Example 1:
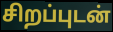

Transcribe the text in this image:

சிறப்புடன்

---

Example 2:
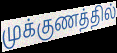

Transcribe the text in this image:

முக்குணத்தில்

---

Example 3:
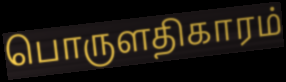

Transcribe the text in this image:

பொருளதிகாரம்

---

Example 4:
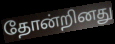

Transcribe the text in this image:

தோன்றினது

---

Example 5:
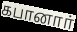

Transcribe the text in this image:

கபானார்